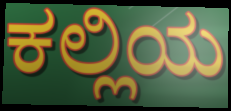
ಕಲ್ಲಿಯ